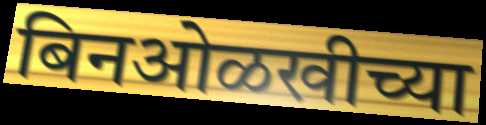
बिनओळखीच्या